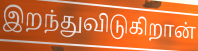
இறந்துவிடுகிறான்